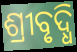
ଶ୍ରୀବୃଦ୍ଧି